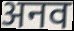
अनव